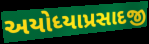
અયોધ્યાપ્રસાદજી